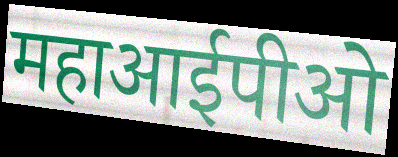
महाआईपीओ